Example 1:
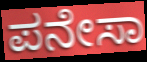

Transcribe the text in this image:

ಪನೇಸಾ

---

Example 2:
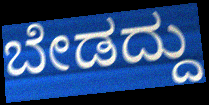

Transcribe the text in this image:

ಬೇಡದ್ದು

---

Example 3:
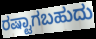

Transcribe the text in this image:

ರಷ್ಟಾಗಬಹುದು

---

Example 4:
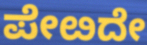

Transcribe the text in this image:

ಪೇೞದೇ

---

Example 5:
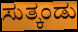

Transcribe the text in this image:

ಸುತ್ಕಂಡು